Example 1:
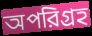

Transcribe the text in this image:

অপরিগ্রহ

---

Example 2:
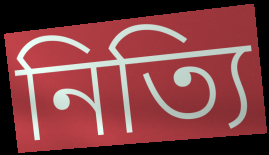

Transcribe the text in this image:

নিত্যি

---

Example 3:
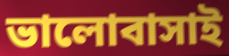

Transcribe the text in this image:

ভালোবাসাই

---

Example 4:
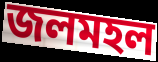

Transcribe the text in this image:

জলমহল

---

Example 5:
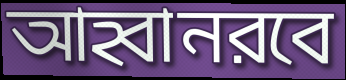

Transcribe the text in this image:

আহ্বানরবে